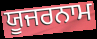
ਯੂਜਰਨਾਮ